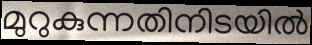
മുറുകുന്നതിനിടയിൽ